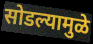
सोडल्यामुळे